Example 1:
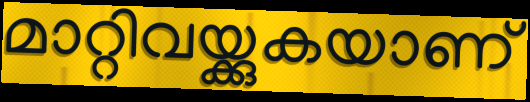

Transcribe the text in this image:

മാറ്റിവയ്ക്കുകയാണ്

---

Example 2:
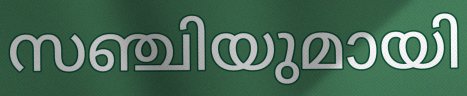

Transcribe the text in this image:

സഞ്ചിയുമായി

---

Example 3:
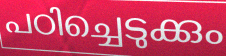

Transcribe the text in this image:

പഠിച്ചെടുക്കും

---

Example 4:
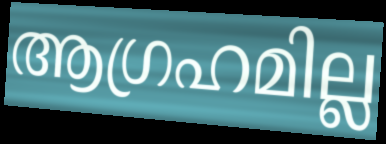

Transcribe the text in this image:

ആഗ്രഹമില്ല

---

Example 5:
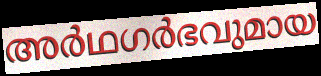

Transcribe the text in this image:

അർഥഗർഭവുമായ